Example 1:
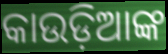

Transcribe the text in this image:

କାଉଡ଼ିଆଙ୍କ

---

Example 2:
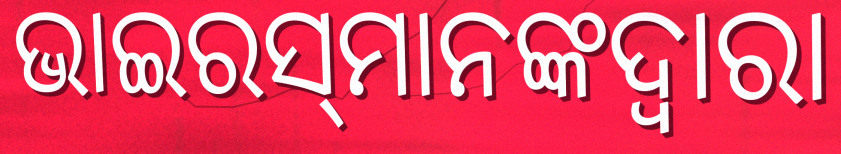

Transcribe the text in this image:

ଭାଇରସ୍‌ମାନଙ୍କଦ୍ୱାରା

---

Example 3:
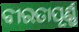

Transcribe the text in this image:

ବୀରତାପୂର୍ଣ୍ଣ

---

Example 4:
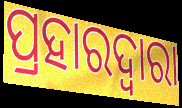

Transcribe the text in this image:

ପ୍ରହାରଦ୍ଵାରା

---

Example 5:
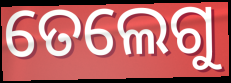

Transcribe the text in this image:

ତେଲେଗୁ